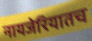
नायजेरियातच